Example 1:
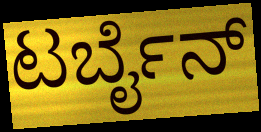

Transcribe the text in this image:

ಟರ್ಬೈನ್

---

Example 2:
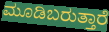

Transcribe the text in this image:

ಮೂಡಿಬರುತ್ತಾರೆ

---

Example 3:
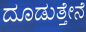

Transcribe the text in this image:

ದೂಡುತ್ತೇನೆ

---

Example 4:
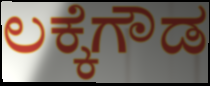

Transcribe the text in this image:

ಲಕ್ಕೆಗೌಡ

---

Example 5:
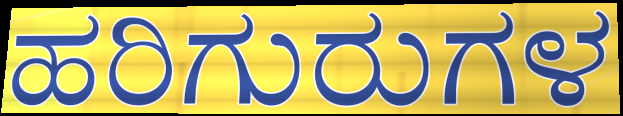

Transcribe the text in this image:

ಹರಿಗುರುಗಳ